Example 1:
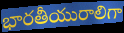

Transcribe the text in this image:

భారతీయురాలిగా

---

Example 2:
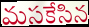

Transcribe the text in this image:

మసకేసిన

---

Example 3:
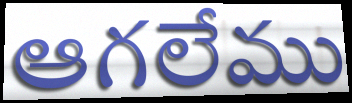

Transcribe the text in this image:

ఆగలేము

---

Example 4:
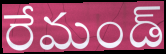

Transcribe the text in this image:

రేమండ్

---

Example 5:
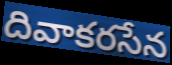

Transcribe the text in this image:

దివాకరసేన